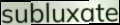
subluxate